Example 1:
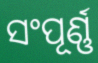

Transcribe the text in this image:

ସଂପୂର୍ଣ୍ଣ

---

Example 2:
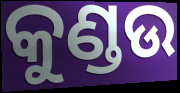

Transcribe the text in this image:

କୁଣ୍ଡଉ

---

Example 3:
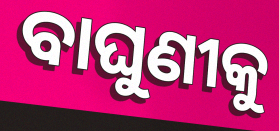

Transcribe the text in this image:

ବାଘୁଣୀକୁ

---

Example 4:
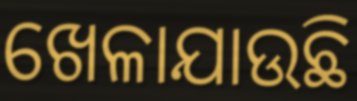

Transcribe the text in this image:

ଖେଳାଯାଉଛି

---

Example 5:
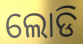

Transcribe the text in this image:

ଲୋଡି